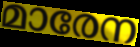
മാരേന